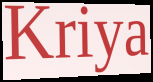
Kriya